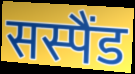
सस्पैंड